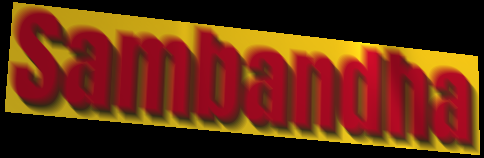
Sambandha